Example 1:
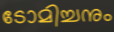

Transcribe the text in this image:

ടോമിച്ചനും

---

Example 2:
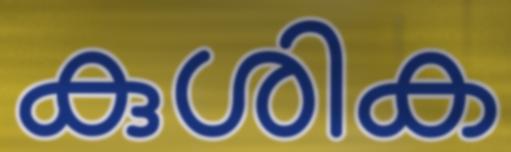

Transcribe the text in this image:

കുശിക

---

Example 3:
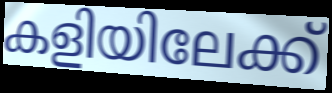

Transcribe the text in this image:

കളിയിലേക്ക്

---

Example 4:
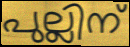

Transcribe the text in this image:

പുല്ലിന്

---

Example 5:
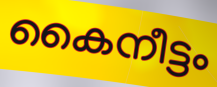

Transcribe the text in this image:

കൈനീട്ടം